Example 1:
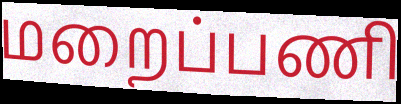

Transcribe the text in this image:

மறைப்பணி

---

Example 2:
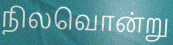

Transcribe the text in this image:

நிலவொன்று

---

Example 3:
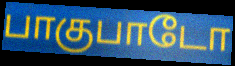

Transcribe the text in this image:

பாகுபாடோ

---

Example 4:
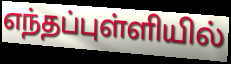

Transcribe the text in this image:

எந்தப்புள்ளியில்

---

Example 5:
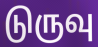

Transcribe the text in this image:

டுருவு